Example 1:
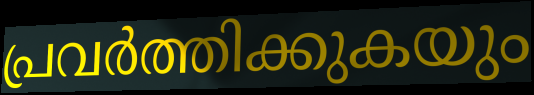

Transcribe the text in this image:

പ്രവർത്തിക്കുകയും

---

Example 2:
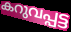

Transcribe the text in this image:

കറുവപ്പട്ട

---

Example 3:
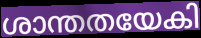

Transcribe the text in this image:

ശാന്തതയേകി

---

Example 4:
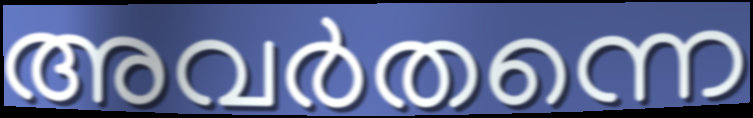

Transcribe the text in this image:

അവർതന്നെ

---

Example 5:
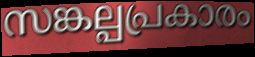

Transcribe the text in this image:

സങ്കല്പപ്രകാരം